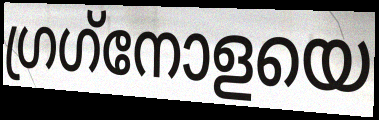
ഗ്രഗ്‌നോളയെ